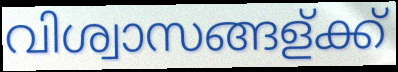
വിശ്വാസങ്ങള്ക്ക്